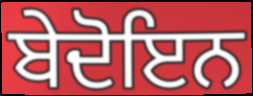
ਬੇਦੋਇਨ